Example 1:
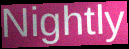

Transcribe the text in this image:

Nightly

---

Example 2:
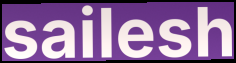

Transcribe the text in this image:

sailesh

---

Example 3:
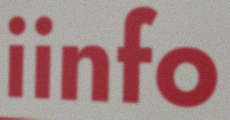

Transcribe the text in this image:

iinfo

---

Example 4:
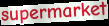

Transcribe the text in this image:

supermarket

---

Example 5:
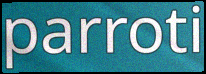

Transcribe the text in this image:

parroti